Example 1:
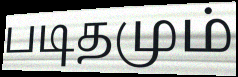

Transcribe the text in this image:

படிதமும்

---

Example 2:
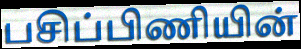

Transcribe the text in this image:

பசிப்பிணியின்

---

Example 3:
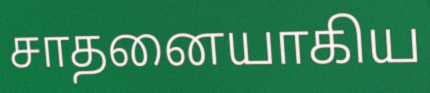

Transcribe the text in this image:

சாதனையாகிய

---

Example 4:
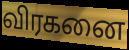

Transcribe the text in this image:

விரகனை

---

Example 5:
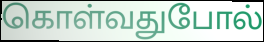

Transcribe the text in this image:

கொள்வதுபோல்